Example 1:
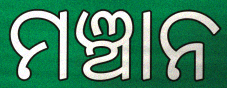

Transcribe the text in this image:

ମଞ୍ଚାନ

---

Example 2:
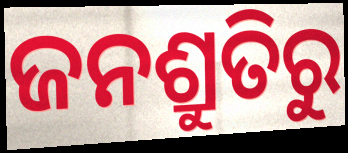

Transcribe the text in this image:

ଜନଶ୍ରୁତିରୁ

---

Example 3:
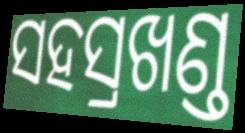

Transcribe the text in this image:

ସହସ୍ରଖଣ୍ଡ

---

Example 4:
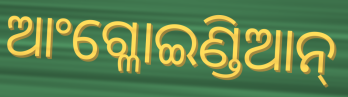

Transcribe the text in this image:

ଆଂଗ୍ଳୋଇଣ୍ଡିଆନ୍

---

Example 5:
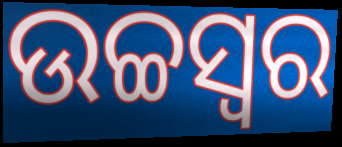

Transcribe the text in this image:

ଉଚ୍ଚସ୍ବର